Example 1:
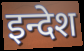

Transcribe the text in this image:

इन्देश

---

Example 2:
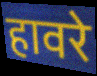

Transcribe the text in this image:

हावरे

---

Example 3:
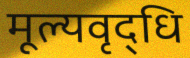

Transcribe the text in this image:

मूल्यवृद्धि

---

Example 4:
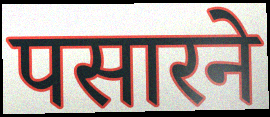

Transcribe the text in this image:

पसारने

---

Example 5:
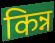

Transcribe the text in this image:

किन्न